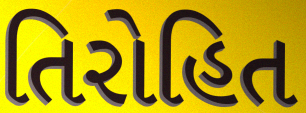
તિરોહિત